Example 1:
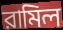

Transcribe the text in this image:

রামিল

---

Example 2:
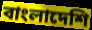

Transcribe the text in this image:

বাংলাদেশি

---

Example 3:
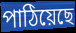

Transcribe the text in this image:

পাঠিয়েছে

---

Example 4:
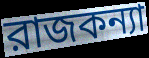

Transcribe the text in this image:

রাজকন্যা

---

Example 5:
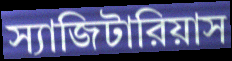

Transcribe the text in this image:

স্যাজিটারিয়াস